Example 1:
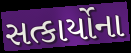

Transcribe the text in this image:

સત્કાર્યોના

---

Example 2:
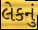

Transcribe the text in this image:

લેકનું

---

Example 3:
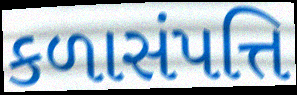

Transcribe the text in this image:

કળાસંપત્તિ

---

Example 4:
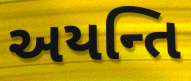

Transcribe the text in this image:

અયન્તિ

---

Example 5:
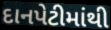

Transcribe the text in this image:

દાનપેટીમાંથી